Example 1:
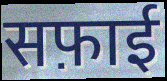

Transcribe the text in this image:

सफ़ाई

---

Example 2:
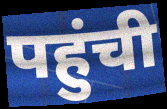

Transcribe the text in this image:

पहुंची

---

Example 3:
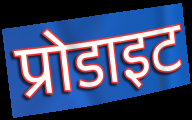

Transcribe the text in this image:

प्रोडाइट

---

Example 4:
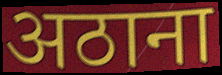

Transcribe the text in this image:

अठाना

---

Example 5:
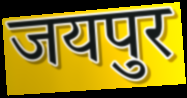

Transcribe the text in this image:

जयपुर